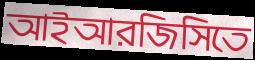
আইআরজিসিতে